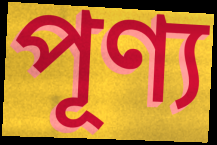
পূণ্য